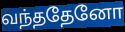
வந்ததேனோ